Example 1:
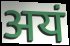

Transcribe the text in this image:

अयं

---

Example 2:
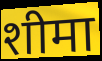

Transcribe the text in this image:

शीमा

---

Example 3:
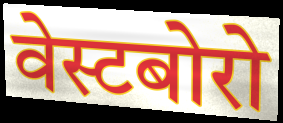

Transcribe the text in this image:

वेस्टबोरो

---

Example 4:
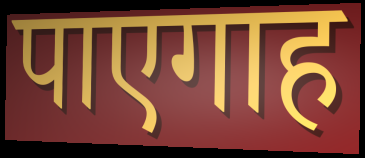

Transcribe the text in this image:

पाएगाह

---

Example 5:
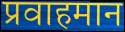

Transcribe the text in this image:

प्रवाहमान